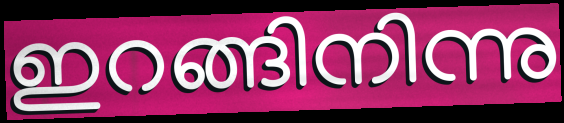
ഇറങ്ങിനിന്നു